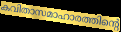
കവിതാസമാഹാരത്തിന്റെ